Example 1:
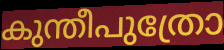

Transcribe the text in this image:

കുന്തീപുത്രോ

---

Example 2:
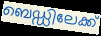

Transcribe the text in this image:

ബെഡ്ഡിലേക്ക്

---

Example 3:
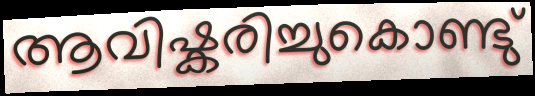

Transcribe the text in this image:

ആവിഷ്കരിച്ചുകൊണ്ടു്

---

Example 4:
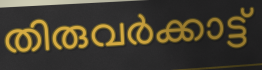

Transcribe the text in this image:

തിരുവർക്കാട്ട്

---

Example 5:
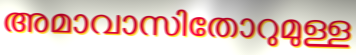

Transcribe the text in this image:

അമാവാസിതോറുമുള്ള